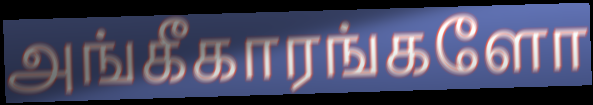
அங்கீகாரங்களோ